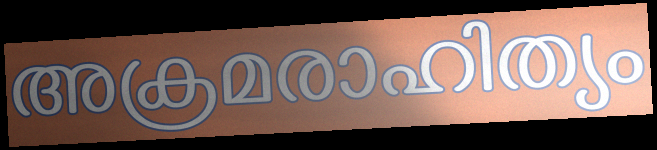
അക്രമരാഹിത്യം